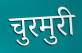
चुरमुरी